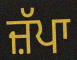
ਜ਼ੱਪਾ